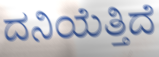
ದನಿಯೆತ್ತಿದೆ